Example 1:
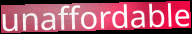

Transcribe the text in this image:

unaffordable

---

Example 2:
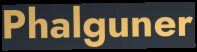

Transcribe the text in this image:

Phalguner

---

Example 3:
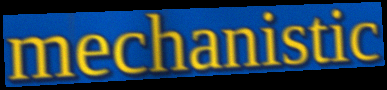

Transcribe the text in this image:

mechanistic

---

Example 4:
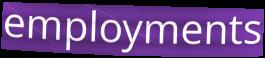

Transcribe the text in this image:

employments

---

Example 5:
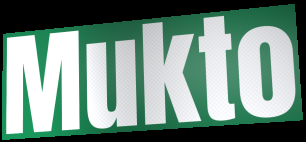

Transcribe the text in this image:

Mukto